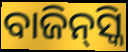
ବାଜିନ୍‌ସ୍କି